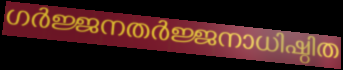
ഗർജ്ജനതർജ്ജനാധിഷ്ഠിത